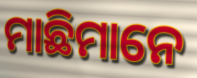
ମାଛିମାନେ